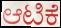
ಆಟಿಕೆ